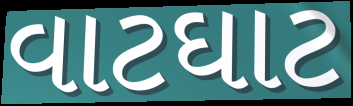
વાટઘાટ